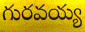
గురవయ్య